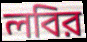
লবির